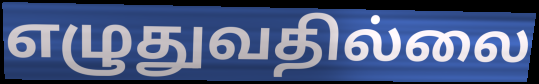
எழுதுவதில்லை